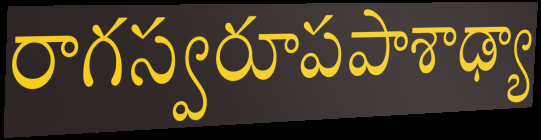
రాగస్వరూపపాశాఢ్యా